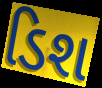
ડિશ